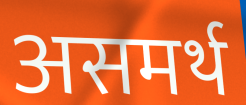
असमर्थ